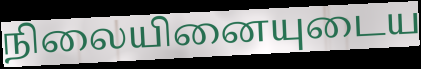
நிலையினையுடைய